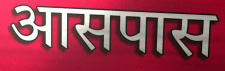
आसपास